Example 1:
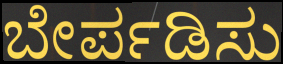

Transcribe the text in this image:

ಬೇರ್ಪಡಿಸು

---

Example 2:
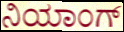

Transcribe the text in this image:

ನಿಯಾಂಗ್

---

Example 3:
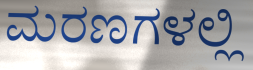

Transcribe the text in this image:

ಮರಣಗಳಲ್ಲಿ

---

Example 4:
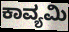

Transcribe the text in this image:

ಕಾವ್ಯಮಿ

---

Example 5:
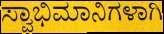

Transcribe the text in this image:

ಸ್ವಾಭಿಮಾನಿಗಳಾಗಿ